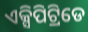
ଏକ୍ସିପିଟ୍ରିଡେ